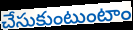
చేసుకుంటుంటాం